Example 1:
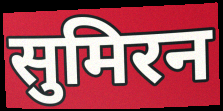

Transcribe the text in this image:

सुमिरन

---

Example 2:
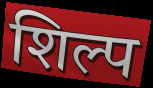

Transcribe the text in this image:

शिल्‍प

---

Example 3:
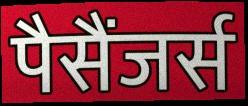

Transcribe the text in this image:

पैसैंजर्स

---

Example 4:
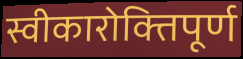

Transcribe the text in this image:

स्वीकारोक्तिपूर्ण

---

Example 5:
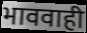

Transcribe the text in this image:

भाववाही